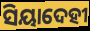
ସିୟାଦେହୀ